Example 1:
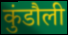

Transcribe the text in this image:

कुंडौली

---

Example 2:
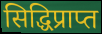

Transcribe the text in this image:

सिद्धिप्राप्त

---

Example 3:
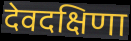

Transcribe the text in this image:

देवदक्षिणा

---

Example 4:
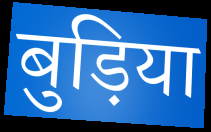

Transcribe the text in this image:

बुड़िया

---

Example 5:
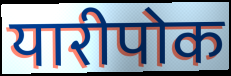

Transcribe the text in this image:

यारीपोक